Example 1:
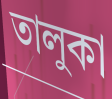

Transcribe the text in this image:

তালুকা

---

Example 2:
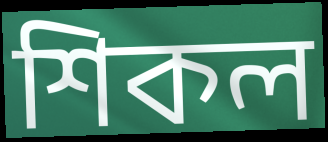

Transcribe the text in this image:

শিকল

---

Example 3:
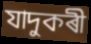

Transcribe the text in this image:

যাদুকৰী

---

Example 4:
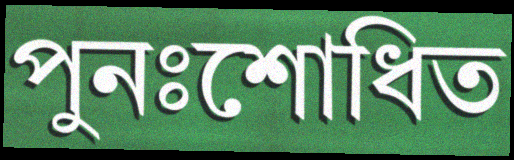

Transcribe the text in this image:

পুনঃশোধিত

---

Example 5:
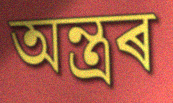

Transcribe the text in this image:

অন্ত্ৰৰ